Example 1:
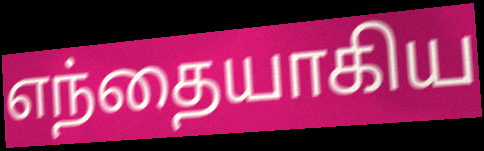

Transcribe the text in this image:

எந்தையாகிய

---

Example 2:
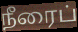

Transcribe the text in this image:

நீரைப்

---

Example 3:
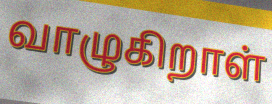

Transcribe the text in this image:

வாழுகிறாள்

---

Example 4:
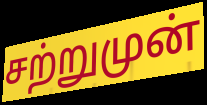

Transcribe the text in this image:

சற்றுமுன்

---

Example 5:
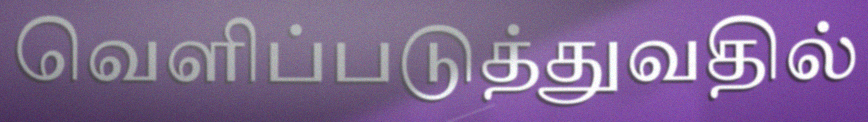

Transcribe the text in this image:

வெளிப்படுத்துவதில்